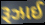
રૂઝાઈ